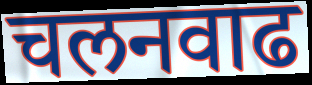
चलनवाढ